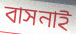
বাসনাই